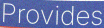
Provides